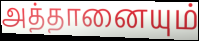
அத்தானையும்